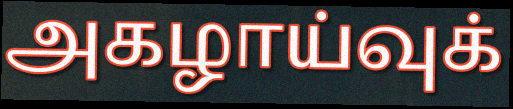
அகழாய்வுக்